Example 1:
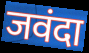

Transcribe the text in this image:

जवंदा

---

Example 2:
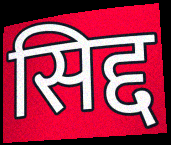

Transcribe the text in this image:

सिद्द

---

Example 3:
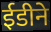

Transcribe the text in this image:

ईडीने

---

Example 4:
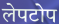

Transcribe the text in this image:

लेपटोप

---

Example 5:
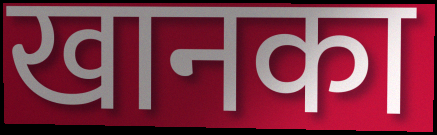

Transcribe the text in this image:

खानका